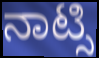
ನಾಟ್ಸಿ